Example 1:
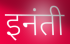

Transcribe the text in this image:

इनंती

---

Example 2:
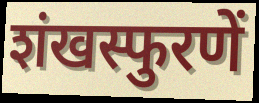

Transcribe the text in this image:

शंखस्फुरणें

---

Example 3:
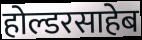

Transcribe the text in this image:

होल्डरसाहेब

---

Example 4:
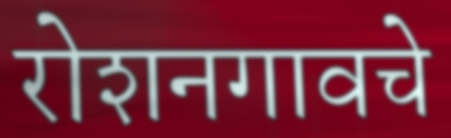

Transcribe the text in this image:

रोशनगावचे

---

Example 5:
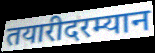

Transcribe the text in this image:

तयारीदरम्यान